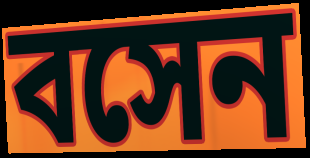
বসেন